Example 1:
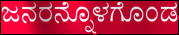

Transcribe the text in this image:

ಜನರನ್ನೊಳಗೊಂಡ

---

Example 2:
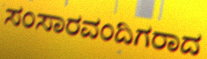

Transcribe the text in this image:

ಸಂಸಾರವಂದಿಗರಾದ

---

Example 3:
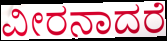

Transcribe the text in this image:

ವೀರನಾದರೆ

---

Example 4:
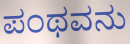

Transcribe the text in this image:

ಪಂಥವನು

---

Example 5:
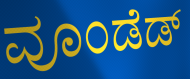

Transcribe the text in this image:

ವೂಂಡೆಡ್